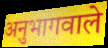
अनुभागवाले